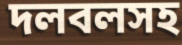
দলবলসহ